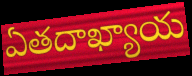
ఏతదాఖ్యాయ